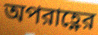
অপরাহ্ণের